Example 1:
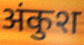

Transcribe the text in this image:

अंकुश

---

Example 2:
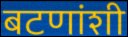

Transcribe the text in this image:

बटणांशी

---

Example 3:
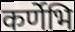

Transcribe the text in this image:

कर्णेभि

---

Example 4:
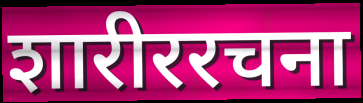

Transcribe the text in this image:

शारीररचना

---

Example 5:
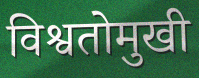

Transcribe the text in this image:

विश्वतोमुखी